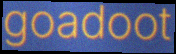
goadoot